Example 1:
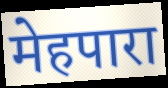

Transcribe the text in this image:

मेहपारा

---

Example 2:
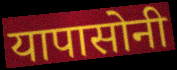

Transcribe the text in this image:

यापासोनी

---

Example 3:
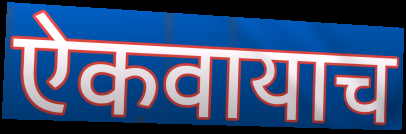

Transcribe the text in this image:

ऐकवायाच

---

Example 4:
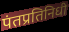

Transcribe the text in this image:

पंतप्रतिनिधी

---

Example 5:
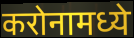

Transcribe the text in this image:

करोनामध्ये